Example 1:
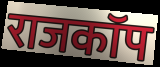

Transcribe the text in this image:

राजकॉप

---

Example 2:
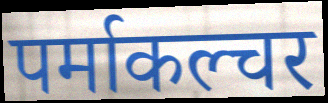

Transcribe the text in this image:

पर्माकल्चर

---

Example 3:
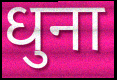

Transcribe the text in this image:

धुना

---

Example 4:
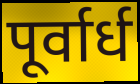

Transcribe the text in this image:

पूर्वार्ध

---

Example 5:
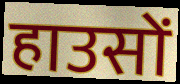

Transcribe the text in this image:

हाउसों